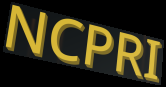
NCPRI